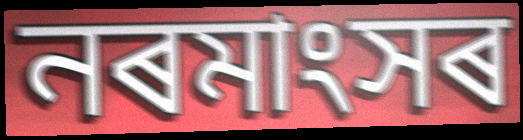
নৰমাংসৰ